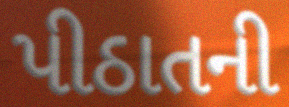
પીઠાતની